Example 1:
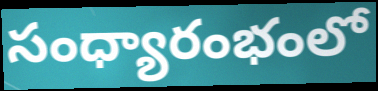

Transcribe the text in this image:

సంధ్యారంభంలో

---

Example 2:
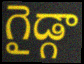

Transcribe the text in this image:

గైడ్గా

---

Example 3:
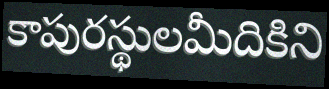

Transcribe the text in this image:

కాపురస్థులమీదికిని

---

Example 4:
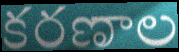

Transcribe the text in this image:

కరణాల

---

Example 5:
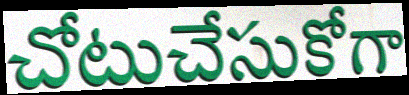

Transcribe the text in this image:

చోటుచేసుకోగా